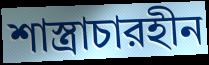
শাস্ত্রাচারহীন